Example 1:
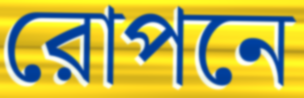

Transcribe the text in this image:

রোপনে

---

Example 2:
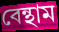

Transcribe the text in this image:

বেন্থাম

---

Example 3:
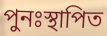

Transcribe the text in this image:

পুনঃস্থাপিত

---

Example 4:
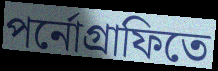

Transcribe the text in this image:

পর্নোগ্রাফিতে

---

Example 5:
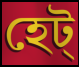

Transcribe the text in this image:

হেট্